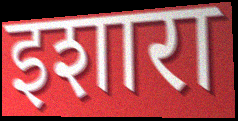
इशारा